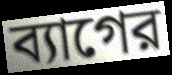
ব্যাগের